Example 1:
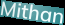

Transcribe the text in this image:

Mithan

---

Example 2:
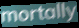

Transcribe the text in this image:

mortally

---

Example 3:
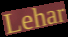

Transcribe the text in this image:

Lehar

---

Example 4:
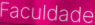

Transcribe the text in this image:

Faculdade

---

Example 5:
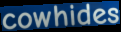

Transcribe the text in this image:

cowhides